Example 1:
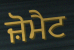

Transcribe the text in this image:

ਜ਼ੋਮੈਟ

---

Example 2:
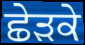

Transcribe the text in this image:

ਛੇੜਕੇ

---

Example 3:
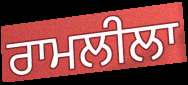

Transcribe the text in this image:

ਰਾਮਲੀਲਾ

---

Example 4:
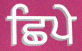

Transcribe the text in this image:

ਛਿਪੇ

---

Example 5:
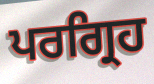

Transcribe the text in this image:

ਪਰਗ੍ਰਿਹ